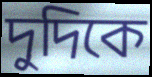
দুদিকে